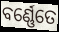
ବର୍ଣ୍ଣେତେ